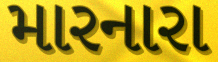
મારનારા